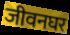
जीवनघर